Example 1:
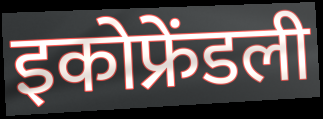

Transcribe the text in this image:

इकोफ्रेंडली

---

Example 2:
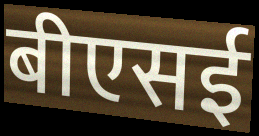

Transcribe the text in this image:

बीएसई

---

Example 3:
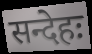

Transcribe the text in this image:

सन्देहः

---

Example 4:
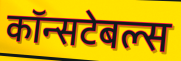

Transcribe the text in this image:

कॉन्सटेबल्स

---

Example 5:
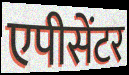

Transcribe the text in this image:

एपीसेंटर